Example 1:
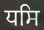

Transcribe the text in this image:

ਧਸਿ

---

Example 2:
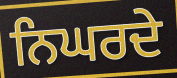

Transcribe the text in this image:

ਨਿਘਰਦੇ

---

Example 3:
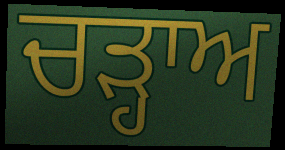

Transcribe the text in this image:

ਚੜ੍ਹਾਅ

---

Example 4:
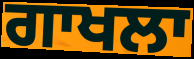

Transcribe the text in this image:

ਗਾਖਲਾ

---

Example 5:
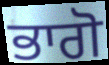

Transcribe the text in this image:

ਭਾਗੋ